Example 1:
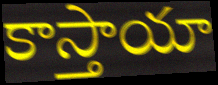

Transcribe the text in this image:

కాస్తాయా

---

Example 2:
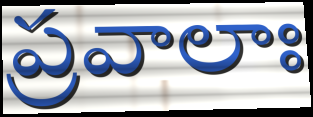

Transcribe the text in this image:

ప్రవాలాః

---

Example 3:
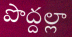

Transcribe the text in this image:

పొద్దల్లా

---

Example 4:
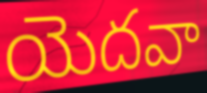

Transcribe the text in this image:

యెదవా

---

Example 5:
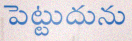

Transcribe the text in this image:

పెట్టుదును